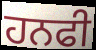
ਹਨਫੀ